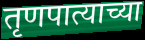
तृणपात्याच्या